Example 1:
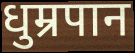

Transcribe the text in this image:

धुम्रपान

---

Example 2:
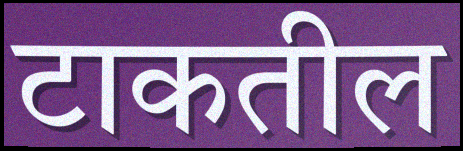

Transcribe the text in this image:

टाकतील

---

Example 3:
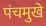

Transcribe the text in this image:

पंचमुखे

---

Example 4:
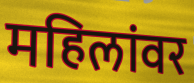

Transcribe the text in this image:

महिलांवर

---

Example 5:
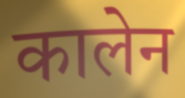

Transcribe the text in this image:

कालेन